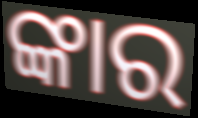
ଙ୍କାର